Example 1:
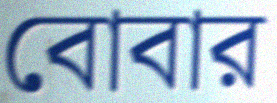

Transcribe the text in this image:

বোবার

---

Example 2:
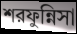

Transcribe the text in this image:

শরফুন্নিসা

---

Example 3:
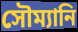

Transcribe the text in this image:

সৌম্যানি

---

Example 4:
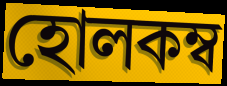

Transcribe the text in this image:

হোলকম্ব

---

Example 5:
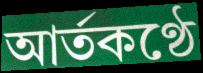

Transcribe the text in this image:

আর্তকণ্ঠে